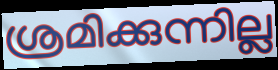
ശ്രമിക്കുന്നില്ല